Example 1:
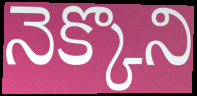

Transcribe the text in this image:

నెక్కొని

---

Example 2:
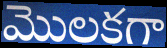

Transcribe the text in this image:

మొలకగా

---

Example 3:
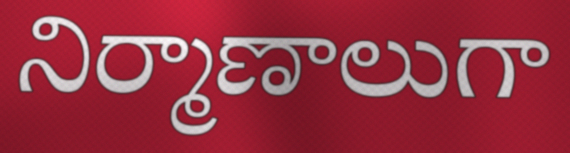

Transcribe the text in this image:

నిర్మాణాలుగా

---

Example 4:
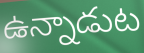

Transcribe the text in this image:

ఉన్నాడుట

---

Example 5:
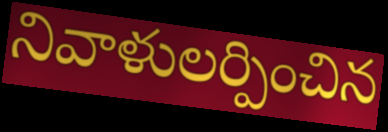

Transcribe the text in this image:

నివాళులర్పించిన